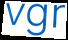
vgr